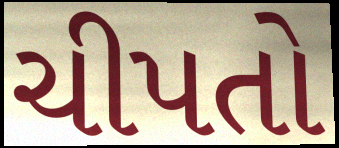
ચીપતો